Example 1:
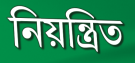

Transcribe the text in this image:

নিয়ন্ত্রিত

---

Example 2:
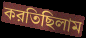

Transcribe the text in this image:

করতিছিলাম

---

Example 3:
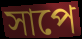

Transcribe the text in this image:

সাপে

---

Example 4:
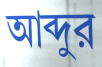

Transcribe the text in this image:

আব্দুর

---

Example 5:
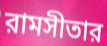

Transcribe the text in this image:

রামসীতার